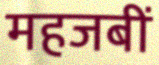
महजबीं